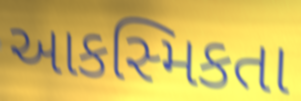
આકસ્મિકતા